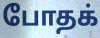
போதக்